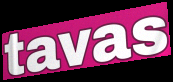
tavas